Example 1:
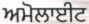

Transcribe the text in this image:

ਅਮੋਲਾਈਟ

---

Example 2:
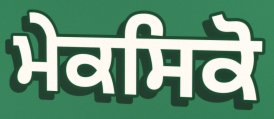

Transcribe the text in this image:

ਮੇਕਸਿਕੋ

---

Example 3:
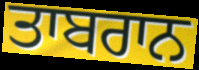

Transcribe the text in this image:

ਤਾਬਰਾਨ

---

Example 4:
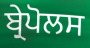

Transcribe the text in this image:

ਬ੍ਰੇਪੋਲਸ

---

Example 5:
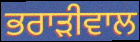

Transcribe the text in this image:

ਭਰਾੜੀਵਾਲ